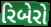
રિબેરો